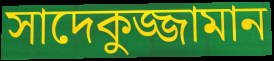
সাদেকুজ্জামান